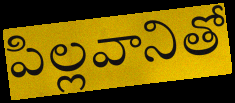
పిల్లవానితో